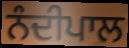
ਨੰਦੀਪਾਲ